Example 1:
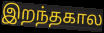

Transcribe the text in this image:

இறந்தகால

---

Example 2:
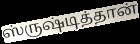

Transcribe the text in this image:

ஸ்ருஷ்டித்தான்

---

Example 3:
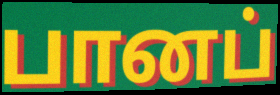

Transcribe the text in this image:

பானப்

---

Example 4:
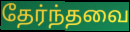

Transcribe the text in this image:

தேர்ந்தவை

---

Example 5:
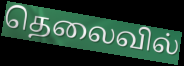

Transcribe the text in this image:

தெலைவில்